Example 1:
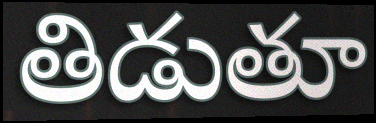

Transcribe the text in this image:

తిడుతూ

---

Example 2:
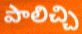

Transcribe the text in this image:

పాలిచ్చి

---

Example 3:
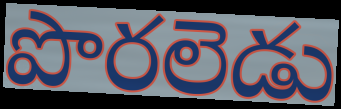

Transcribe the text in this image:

పొరలెడు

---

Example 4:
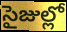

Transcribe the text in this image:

సైజుల్లో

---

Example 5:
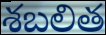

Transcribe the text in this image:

శబలిత